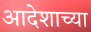
आदेशाच्या